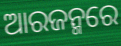
ଆରଜନ୍ମରେ